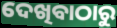
ଦେଖିବାଠାରୁ